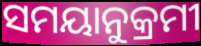
ସମୟାନୁକ୍ରମୀ